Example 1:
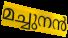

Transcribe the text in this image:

മച്ചുനൻ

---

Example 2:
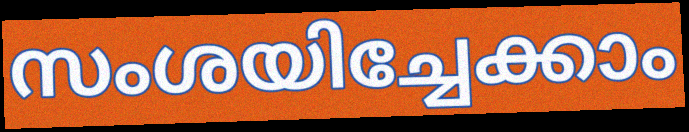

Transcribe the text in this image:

സംശയിച്ചേക്കാം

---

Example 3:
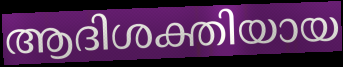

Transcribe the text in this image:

ആദിശക്തിയായ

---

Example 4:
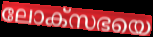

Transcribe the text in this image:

ലോക്സഭയെ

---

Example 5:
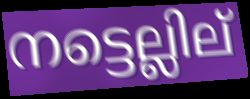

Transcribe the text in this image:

നട്ടെല്ലില്